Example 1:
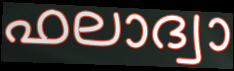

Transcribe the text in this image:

ഫലാദ്വാ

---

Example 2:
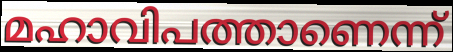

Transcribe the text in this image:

മഹാവിപത്താണെന്ന്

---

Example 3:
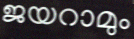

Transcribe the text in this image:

ജയറാമും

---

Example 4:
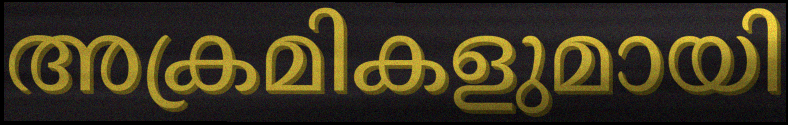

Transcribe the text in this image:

അക്രമികളുമായി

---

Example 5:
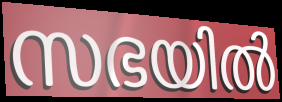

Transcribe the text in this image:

സഭയിൽ